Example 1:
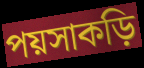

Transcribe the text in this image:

পয়সাকড়ি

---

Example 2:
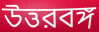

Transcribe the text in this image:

উত্তরবঙ্গ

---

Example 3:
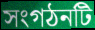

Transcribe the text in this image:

সংগঠনটি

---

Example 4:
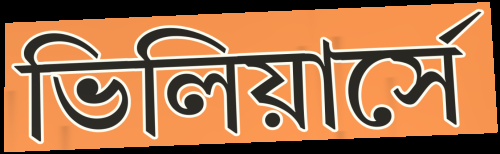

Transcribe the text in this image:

ভিলিয়ার্সে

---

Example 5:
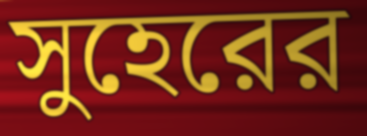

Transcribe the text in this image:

সুহেরের